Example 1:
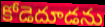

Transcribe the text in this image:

కోడెదూడను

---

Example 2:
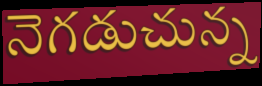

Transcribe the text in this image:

నెగడుచున్న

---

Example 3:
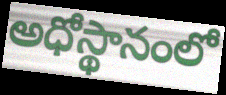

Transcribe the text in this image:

అధోస్థానంలో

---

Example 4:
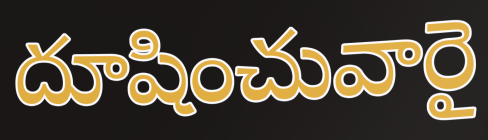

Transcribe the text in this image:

దూషించువారై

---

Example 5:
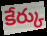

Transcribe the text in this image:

కేర్కు